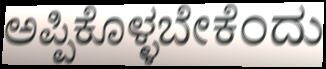
ಅಪ್ಪಿಕೊಳ್ಳಬೇಕೆಂದು